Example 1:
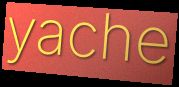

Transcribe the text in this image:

yache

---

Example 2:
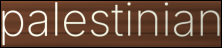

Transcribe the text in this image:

palestinian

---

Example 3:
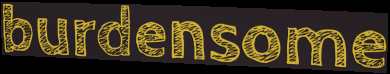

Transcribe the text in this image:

burdensome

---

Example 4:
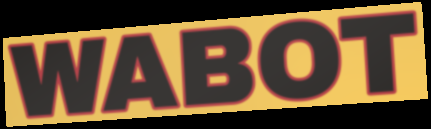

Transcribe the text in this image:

WABOT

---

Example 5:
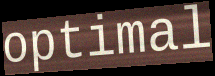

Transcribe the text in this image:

optimal